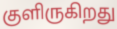
குளிருகிறது